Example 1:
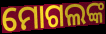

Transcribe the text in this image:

ମୋଗଲଙ୍କ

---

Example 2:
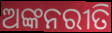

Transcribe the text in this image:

ଅଙ୍କନରୀତି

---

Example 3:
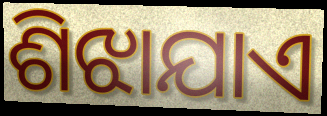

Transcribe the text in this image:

ଶିଝାଯାଏ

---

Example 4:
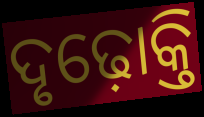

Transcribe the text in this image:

ଦୃଢ଼ୋକ୍ତି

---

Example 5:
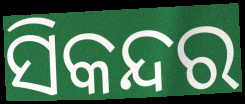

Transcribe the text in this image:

ସିକନ୍ଦର